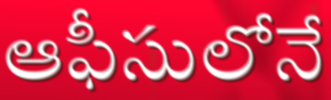
ఆఫీసులోనే